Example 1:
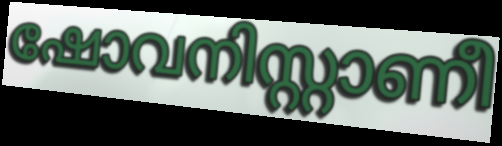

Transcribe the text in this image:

ഷോവനിസ്റ്റാണീ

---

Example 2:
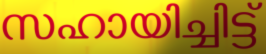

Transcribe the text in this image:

സഹായിച്ചിട്ട്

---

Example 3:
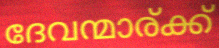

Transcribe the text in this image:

ദേവന്മാര്ക്ക്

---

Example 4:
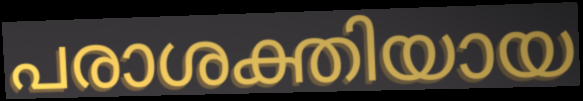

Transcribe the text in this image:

പരാശക്തിയായ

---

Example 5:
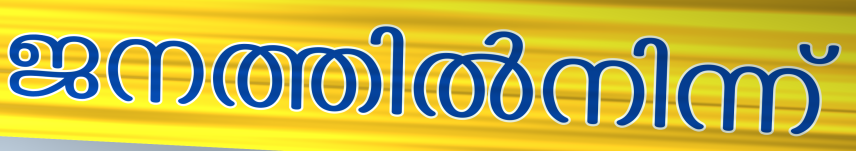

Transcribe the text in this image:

ജനത്തിൽനിന്ന്